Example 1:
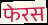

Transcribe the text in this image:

फेरस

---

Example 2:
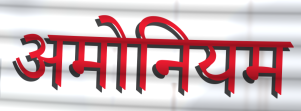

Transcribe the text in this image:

अमोनियम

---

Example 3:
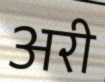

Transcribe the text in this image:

अरी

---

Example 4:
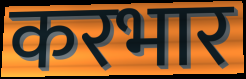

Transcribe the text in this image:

करभार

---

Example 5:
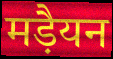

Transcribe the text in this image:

मड़ैयन